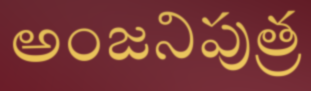
అంజనిపుత్ర